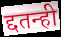
द्दतन्ही